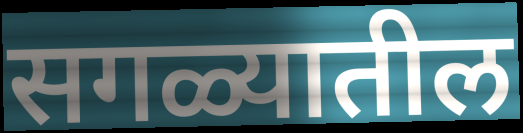
सगळ्यातील